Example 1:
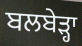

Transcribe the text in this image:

ਬਲਬੇੜ੍ਹਾ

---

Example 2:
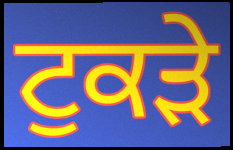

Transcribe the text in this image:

ਟੁਕੜੇ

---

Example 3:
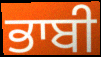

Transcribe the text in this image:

ਭਾਬੀ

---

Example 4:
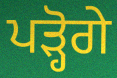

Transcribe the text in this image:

ਪੜ੍ਹੋਗੇ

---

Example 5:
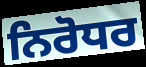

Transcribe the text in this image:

ਨਿਰੋਧਰ